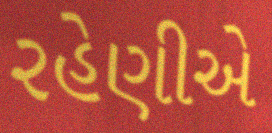
રહેણીએ